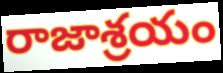
రాజాశ్రయం